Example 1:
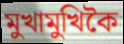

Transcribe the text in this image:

মুখামুখিকৈ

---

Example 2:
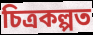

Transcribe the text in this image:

চিত্ৰকল্পত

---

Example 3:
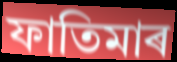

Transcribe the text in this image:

ফাতিমাৰ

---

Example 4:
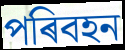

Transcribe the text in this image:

পৰিবহন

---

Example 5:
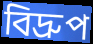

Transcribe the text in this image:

বিদ্ৰুপ